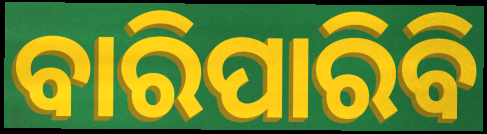
ବାରିପାରିବି